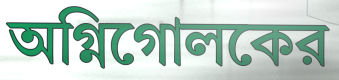
অগ্নিগোলকের